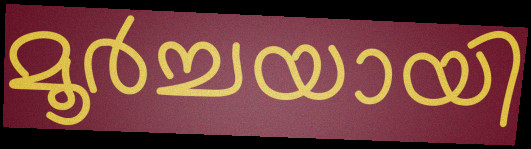
മൂർച്ചയായി